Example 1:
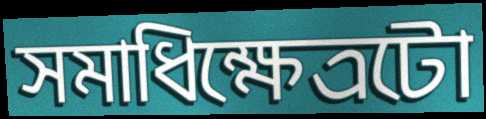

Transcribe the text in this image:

সমাধিক্ষেত্ৰটো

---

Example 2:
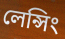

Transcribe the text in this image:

লেন্সিং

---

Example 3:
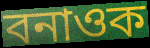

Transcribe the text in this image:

বনাওক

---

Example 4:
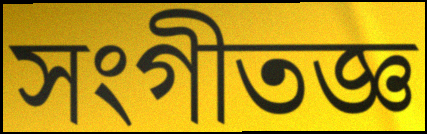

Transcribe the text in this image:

সংগীতজ্ঞ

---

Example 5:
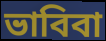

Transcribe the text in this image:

ভাবিবা